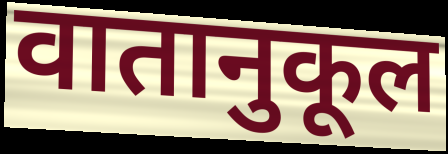
वातानुकूल